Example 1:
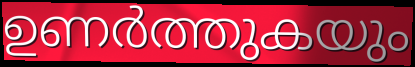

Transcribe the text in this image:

ഉണർത്തുകയും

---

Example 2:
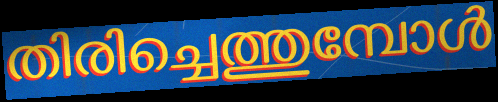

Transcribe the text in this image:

തിരിച്ചെത്തുമ്പോൾ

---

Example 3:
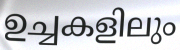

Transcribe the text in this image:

ഉച്ചകളിലും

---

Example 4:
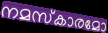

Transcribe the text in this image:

നമസ്കാരമോ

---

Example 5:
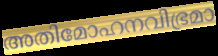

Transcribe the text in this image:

അതിമോഹനവിഭ്രമാ